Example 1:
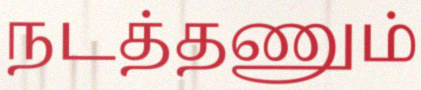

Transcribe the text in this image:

நடத்தணும்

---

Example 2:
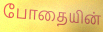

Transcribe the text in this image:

போதையின்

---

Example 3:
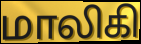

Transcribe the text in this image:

மாலிகி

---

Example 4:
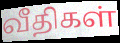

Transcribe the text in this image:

வீதிகள்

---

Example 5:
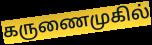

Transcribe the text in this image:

கருணைமுகில்